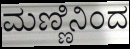
ಮಣ್ಣಿನಿಂದ